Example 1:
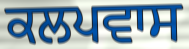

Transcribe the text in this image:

ਕਲਪਵਾਸ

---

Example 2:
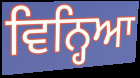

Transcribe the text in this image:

ਵਿਨ੍ਹਿਆ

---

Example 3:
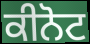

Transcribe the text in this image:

ਕੀਨੋਟ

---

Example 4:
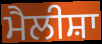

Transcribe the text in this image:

ਮੈਲੀਸ਼ਾ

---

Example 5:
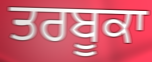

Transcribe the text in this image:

ਤਰਬੂਕਾ